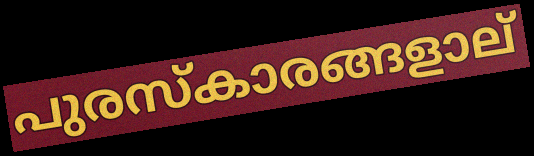
പുരസ്കാരങ്ങളാല്